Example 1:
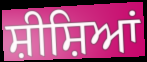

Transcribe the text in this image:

ਸ਼ੀਸ਼ਿਆਂ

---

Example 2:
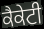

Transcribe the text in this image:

ਕੈਕੇਟੀ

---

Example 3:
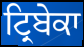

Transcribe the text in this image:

ਟ੍ਰਿਬੇਕਾ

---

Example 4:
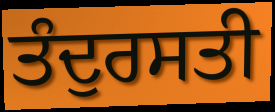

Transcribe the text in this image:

ਤੰਦੁਰਸਤੀ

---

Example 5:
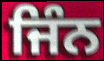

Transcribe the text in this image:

ਜਿੰਨ